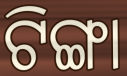
ଟିଙ୍ଗା